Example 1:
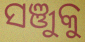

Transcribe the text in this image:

ସଞ୍ଜୁକୁ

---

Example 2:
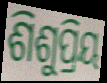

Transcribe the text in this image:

ଶିଶୁପ୍ରିୟ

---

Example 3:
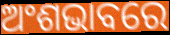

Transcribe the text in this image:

ଅଂଶଭାବରେ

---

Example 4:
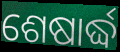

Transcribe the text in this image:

ଶେଷାର୍ଦ୍ଧ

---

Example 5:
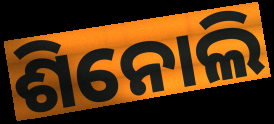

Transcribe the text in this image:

ଶିନୋଲି